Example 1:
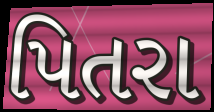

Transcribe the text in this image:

પિતરા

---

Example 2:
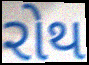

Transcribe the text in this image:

રોથ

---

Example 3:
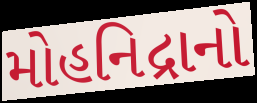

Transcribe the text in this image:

મોહનિદ્રાનો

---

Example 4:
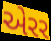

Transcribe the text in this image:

એરર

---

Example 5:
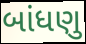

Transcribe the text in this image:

બાંધણુ